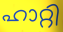
ഹാറ്റി